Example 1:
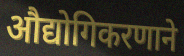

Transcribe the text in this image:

औद्योगिकरणाने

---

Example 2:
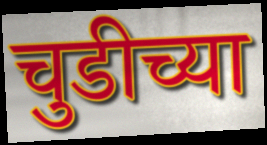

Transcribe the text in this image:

चुडीच्या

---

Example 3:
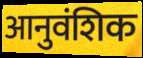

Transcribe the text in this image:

आनुवंशिक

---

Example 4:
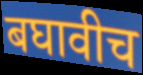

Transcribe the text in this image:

बघावीच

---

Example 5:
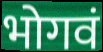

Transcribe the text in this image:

भोगवं